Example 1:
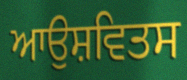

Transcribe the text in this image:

ਆਉਸ਼ਵਿਤਸ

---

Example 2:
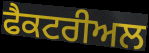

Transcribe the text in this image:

ਫੈਕਟਰੀਅਲ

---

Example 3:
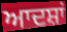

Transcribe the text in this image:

ਆਦਸ਼ਾਂ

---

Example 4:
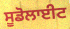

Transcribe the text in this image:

ਸੂਡੋਲਾਈਟ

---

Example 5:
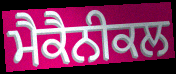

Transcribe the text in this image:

ਮੈਕੈਨੀਕਲ